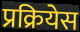
प्रक्रियेस